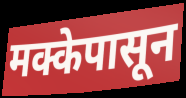
मक्केपासून